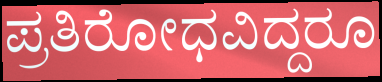
ಪ್ರತಿರೋಧವಿದ್ದರೂ